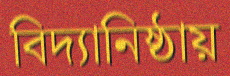
বিদ্যানিষ্ঠায়